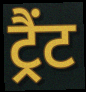
ट्रैंट